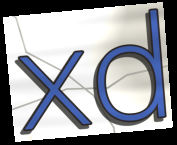
xd